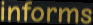
informs